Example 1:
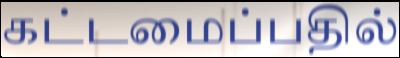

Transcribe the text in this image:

கட்டமைப்பதில்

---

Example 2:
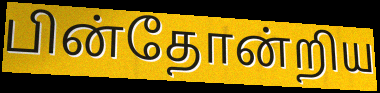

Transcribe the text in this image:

பின்தோன்றிய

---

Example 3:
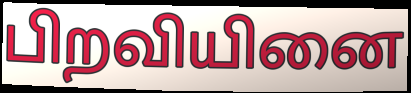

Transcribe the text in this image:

பிறவியினை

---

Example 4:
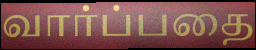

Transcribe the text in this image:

வார்ப்பதை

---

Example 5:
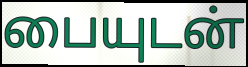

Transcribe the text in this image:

பையுடன்